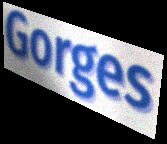
Gorges